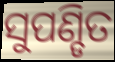
ସୁପଣ୍ଡିତ